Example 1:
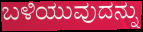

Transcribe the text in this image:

ಬಳಿಯುವುದನ್ನು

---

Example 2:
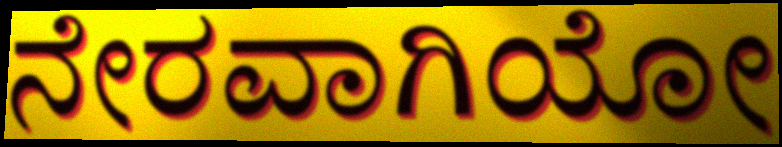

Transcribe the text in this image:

ನೇರವಾಗಿಯೋ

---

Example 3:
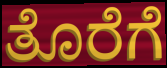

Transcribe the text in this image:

ತೊರೆಗೆ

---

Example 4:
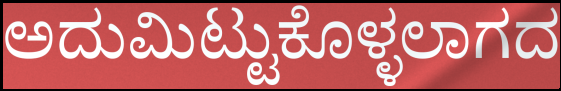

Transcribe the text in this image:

ಅದುಮಿಟ್ಟುಕೊಳ್ಳಲಾಗದ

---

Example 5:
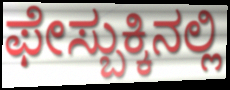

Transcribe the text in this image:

ಫೇಸ್ಬುಕ್ಕಿನಲ್ಲಿ